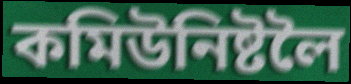
কমিউনিষ্টলৈ